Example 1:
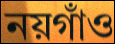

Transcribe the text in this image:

নয়গাঁও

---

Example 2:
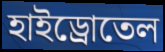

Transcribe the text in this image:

হাইড্রোতেল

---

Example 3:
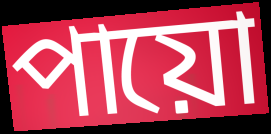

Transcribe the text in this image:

পায়ো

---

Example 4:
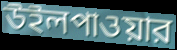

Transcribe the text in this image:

উইলপাওয়ার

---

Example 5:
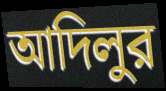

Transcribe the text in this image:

আদিলুর